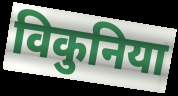
विकुनिया